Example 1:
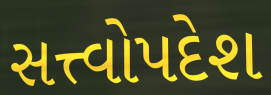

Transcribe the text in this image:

સત્ત્વોપદેશ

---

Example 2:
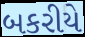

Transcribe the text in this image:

બકરીયે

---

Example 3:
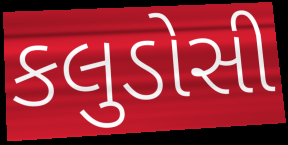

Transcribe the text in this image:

કલુડોસી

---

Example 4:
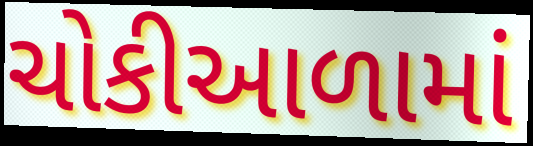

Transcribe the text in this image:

ચોકીઆળામાં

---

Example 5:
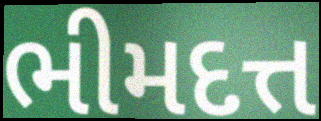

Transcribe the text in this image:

ભીમદત્ત